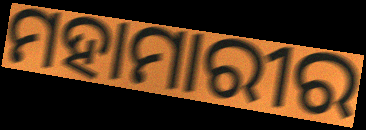
ମହାମାରୀର